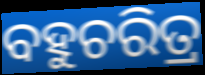
ବହୁଚରିତ୍ର